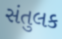
સંતુલક